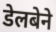
डेलबेने